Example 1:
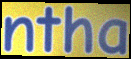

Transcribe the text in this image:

ntha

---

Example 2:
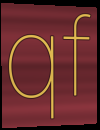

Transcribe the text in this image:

qf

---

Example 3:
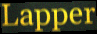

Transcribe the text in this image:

Lapper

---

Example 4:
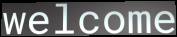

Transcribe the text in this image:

welcome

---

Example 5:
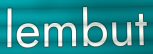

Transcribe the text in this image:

lembut